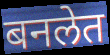
बनलेत